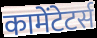
कामेंटेटर्स